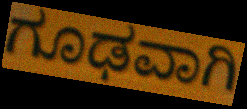
ಗೂಢವಾಗಿ